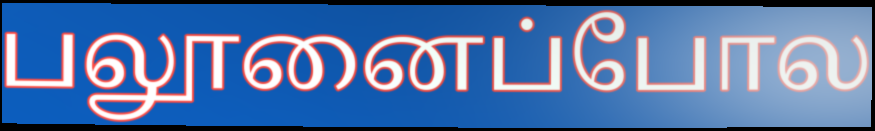
பலூனைப்போல